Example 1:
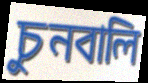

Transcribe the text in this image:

চুনবালি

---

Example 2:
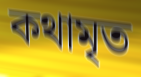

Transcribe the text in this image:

কথামৃত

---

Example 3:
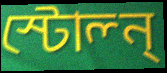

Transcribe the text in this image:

স্টোল্ন্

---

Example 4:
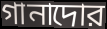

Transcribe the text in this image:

গানাদোর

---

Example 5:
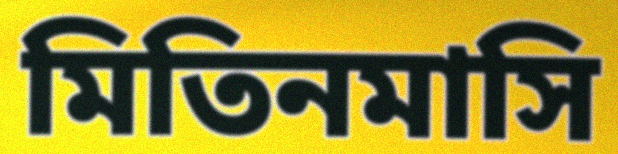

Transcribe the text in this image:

মিতিনমাসি